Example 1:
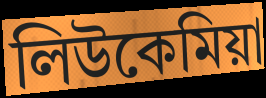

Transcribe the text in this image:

লিউকেমিয়া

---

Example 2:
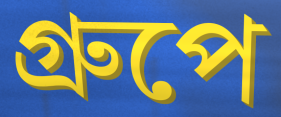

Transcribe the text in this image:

গ্রুপে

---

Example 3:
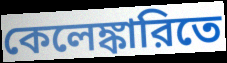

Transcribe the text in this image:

কেলেঙ্কারিতে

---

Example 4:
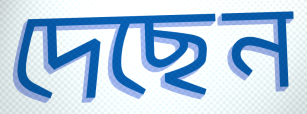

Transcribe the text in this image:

দেছেন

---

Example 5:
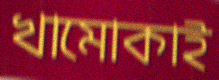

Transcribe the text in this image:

খামোকাই